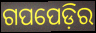
ଗପପେଡ଼ିର